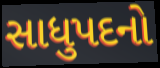
સાધુપદનો